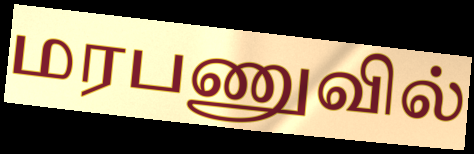
மரபணுவில்